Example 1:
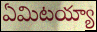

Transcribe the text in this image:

ఏమిటయ్యా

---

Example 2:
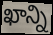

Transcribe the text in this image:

ఖాన్ని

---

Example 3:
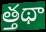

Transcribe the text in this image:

త్తథా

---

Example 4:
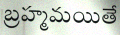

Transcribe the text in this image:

బ్రహ్మమయితే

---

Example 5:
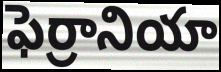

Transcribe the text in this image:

ఫెర్రానియా